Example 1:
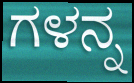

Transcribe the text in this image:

ಗಳನ್ನ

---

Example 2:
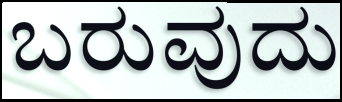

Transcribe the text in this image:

ಬರುವುದು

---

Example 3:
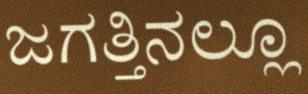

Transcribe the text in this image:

ಜಗತ್ತಿನಲ್ಲೂ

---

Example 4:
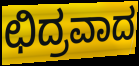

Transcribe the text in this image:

ಛಿದ್ರವಾದ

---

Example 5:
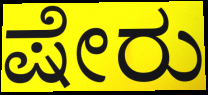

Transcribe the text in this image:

ಷೇರು